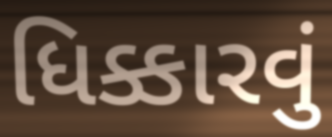
ધિક્કારવું